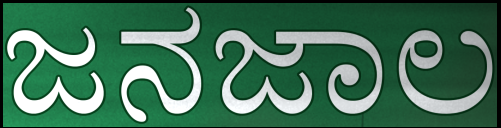
ಜನಜಾಲ